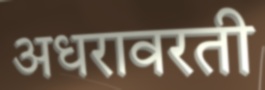
अधरावरती